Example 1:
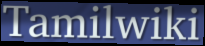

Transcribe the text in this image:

Tamilwiki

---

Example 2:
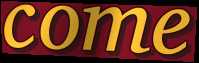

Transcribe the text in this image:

come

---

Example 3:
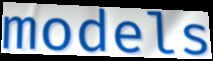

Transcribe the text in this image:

models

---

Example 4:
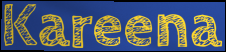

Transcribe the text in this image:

Kareena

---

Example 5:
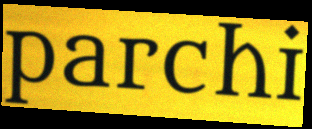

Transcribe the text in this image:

parchi